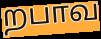
றபாவ